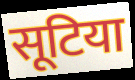
सूटिया